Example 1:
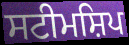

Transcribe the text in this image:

ਸਟੀਮਸ਼ਿਪ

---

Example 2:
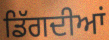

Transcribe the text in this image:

ਡਿੱਗਦੀਆਂ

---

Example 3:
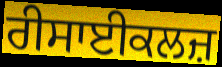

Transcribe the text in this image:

ਰੀਸਾਈਕਲਜ਼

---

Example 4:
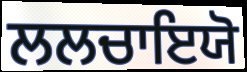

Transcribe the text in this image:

ਲਲਚਾਇਯੋ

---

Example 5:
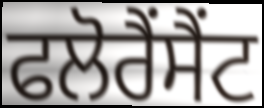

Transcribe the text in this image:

ਫਲੋਰੈਂਸੈਂਟ